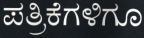
ಪತ್ರಿಕೆಗಳಿಗೂ